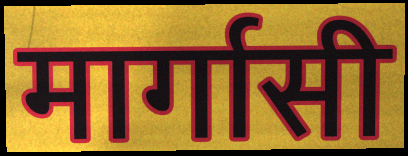
मार्गासी